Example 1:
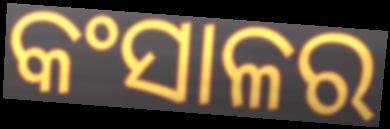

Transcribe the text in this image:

କଂସାଳର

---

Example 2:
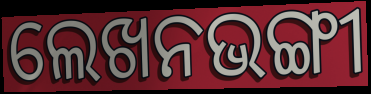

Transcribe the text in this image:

ଲେଖନଭଙ୍ଗୀ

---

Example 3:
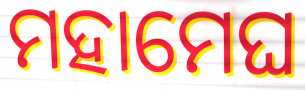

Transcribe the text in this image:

ମହାମେଘ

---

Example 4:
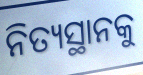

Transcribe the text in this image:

ନିତ୍ୟସ୍ଥାନକୁ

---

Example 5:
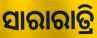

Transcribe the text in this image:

ସାରାରାତ୍ରି